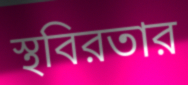
স্থবিরতার